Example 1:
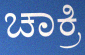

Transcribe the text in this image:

ಚಾಕ್ರಿ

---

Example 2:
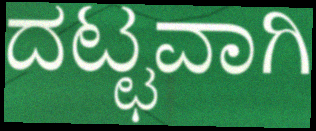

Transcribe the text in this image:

ದಟ್ಟವಾಗಿ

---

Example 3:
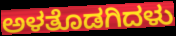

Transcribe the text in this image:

ಅಳತೊಡಗಿದಳು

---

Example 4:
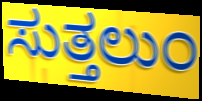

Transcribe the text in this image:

ಸುತ್ತಲುಂ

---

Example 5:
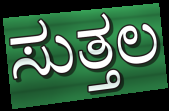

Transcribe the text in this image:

ಸುತ್ತಲ